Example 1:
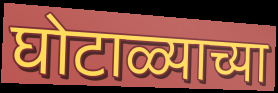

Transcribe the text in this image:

घोटाळ्याच्या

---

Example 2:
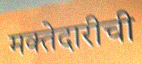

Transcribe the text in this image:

मक्तेदारीची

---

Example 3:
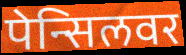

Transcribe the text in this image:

पेन्सिलवर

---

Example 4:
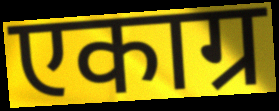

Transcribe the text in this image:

एकाग्र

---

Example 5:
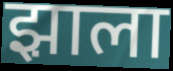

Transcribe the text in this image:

झ़ाला